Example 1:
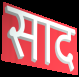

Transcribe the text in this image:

साद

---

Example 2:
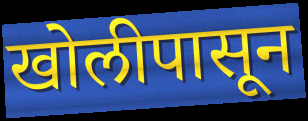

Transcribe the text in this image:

खोलीपासून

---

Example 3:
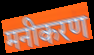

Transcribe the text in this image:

मनीकरण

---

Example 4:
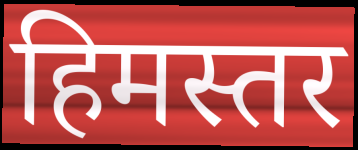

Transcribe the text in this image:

हिमस्तर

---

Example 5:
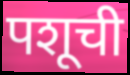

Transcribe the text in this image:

पशूची